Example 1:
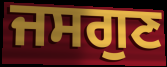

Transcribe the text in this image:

ਜਸਗੁਣ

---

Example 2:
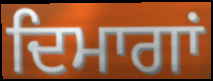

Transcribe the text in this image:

ਦਿਮਾਗਾਂ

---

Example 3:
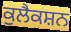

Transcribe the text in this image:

ਕੁਲੈਕਸ਼ਨ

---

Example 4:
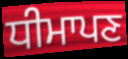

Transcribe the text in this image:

ਧੀਮਾਪਣ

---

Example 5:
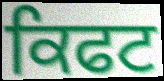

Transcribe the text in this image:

ਕਿਫਟ